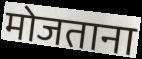
मोजताना